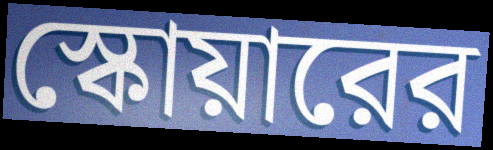
স্কোয়ারের